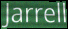
Jarrell